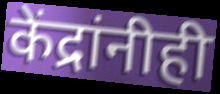
केंद्रांनीही